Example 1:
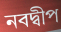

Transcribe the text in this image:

নবদ্বীপ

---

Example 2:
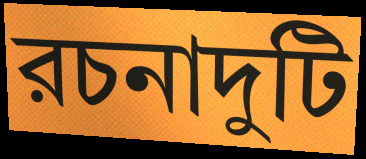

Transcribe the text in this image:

রচনাদুটি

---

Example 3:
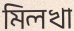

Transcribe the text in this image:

মিলখা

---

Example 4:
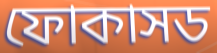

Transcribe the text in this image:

ফোকাসড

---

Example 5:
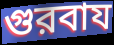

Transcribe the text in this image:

গুরবায